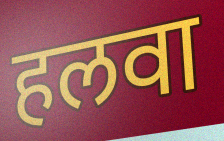
हलवा